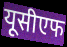
यूसीएफ